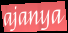
ajanya